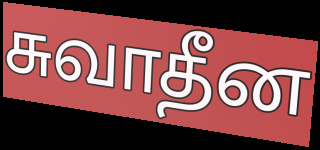
சுவாதீன